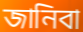
জানিবা